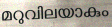
മറുവിലയാകും